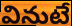
వినుటే